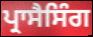
ਪ੍ਰਾਸੈਸਿੰਗ